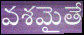
వశమైతే